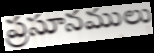
ప్రసూనములు